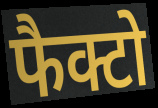
फैक्टो